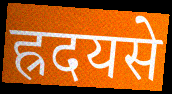
ह्रदयसे